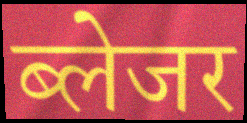
ब्लेजर